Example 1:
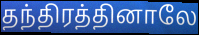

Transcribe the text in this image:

தந்திரத்தினாலே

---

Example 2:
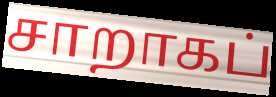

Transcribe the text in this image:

சாறாகப்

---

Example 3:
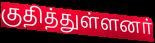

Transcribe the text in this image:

குதித்துள்ளனர்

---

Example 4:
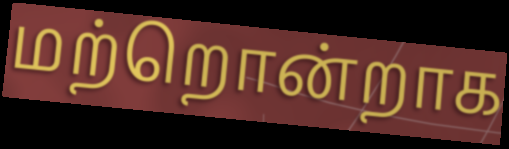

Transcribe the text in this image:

மற்றொன்றாக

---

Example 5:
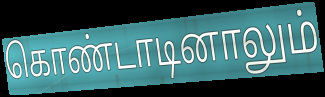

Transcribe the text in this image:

கொண்டாடினாலும்